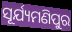
ସୂର୍ଯ୍ୟମଣିପୁର